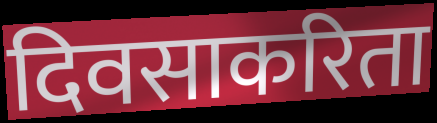
दिवसाकरिता